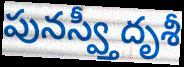
పునస్వ్తీదృశీ